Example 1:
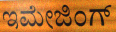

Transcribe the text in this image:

ಇಮೇಜಿಂಗ್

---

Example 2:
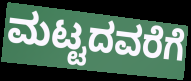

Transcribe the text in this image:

ಮಟ್ಟದವರೆಗೆ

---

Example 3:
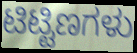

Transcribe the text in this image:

ಟಿಟ್ಟಿಣಗಳು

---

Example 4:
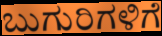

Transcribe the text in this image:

ಬುಗುರಿಗಳಿಗೆ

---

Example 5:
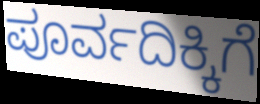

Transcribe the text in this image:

ಪೂರ್ವದಿಕ್ಕಿಗೆ